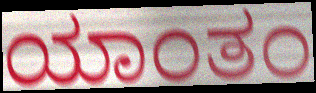
ಯಾಂತಂ